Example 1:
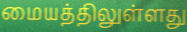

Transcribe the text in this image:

மையத்திலுள்ளது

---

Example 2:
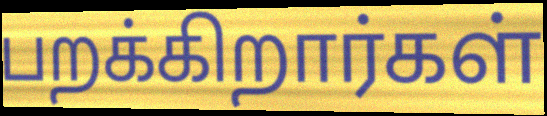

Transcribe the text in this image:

பறக்கிறார்கள்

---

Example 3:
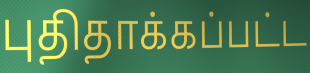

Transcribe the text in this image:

புதிதாக்கப்பட்ட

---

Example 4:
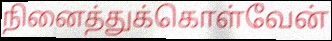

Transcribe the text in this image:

நினைத்துக்கொள்வேன்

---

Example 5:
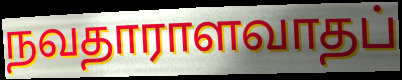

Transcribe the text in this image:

நவதாராளவாதப்